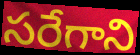
సరేగాని